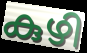
കുഴി